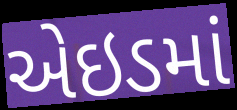
એઇડમાં